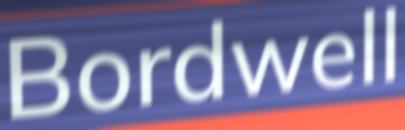
Bordwell